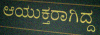
ಆಯುಕ್ತರಾಗಿದ್ದ